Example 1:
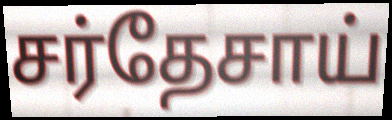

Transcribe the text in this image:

சர்தேசாய்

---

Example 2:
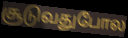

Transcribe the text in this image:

சூடுவதுபோல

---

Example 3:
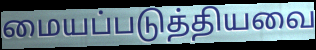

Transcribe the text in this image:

மையப்படுத்தியவை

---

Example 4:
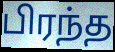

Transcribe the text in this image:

பிரந்த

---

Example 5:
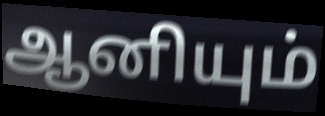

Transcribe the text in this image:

ஆனியும்